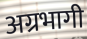
अग्रभागी